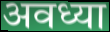
अवध्या